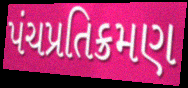
પંચપ્રતિક્રમણ